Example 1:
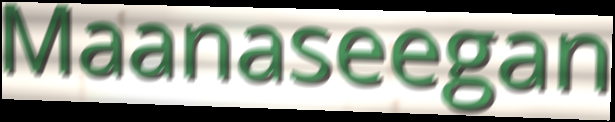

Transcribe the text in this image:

Maanaseegan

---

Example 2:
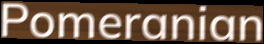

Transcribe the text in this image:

Pomeranian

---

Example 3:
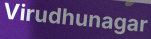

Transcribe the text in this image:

Virudhunagar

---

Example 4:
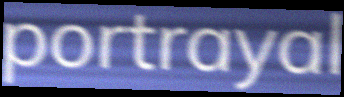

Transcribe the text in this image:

portrayal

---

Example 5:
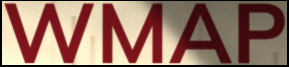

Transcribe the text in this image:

WMAP